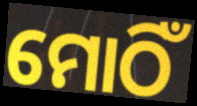
ମୋଠିଁ